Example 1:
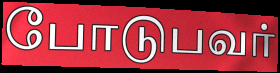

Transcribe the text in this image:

போடுபவர்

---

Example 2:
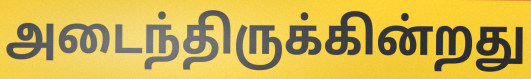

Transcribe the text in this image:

அடைந்திருக்கின்றது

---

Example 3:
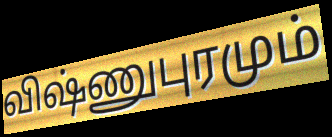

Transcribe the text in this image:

விஷ்ணுபுரமும்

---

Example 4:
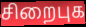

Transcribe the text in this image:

சிறைபுக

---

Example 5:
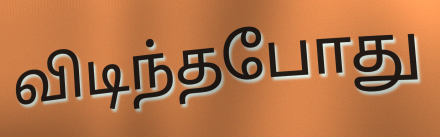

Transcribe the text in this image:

விடிந்தபோது